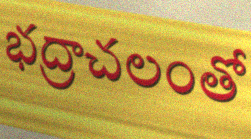
భద్రాచలంతో